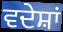
ਵਦੇਸ਼ਾਂ